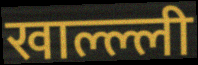
खाल्ल्ली